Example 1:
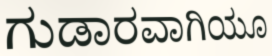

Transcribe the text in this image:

ಗುಡಾರವಾಗಿಯೂ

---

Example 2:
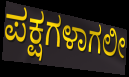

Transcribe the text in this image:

ಪಕ್ಷಗಳಾಗಲೀ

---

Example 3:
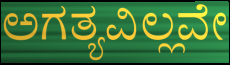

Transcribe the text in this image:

ಅಗತ್ಯವಿಲ್ಲವೇ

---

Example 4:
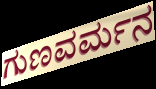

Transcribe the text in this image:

ಗುಣವರ್ಮನ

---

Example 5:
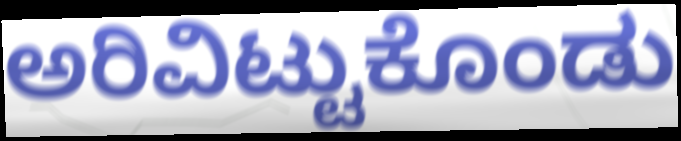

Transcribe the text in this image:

ಅರಿವಿಟ್ಟುಕೊಂಡು